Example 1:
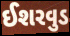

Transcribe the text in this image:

ઈશરવુડ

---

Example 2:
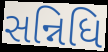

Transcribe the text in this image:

સન્નિધિ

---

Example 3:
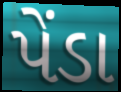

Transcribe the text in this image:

પેંડા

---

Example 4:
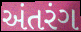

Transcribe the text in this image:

અંતરંગ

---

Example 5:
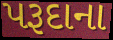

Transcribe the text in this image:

પરૂદાના